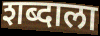
शब्दाला